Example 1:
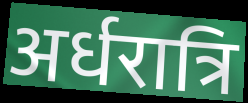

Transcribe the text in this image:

अर्धरात्रि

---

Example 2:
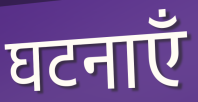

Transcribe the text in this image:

घटनाएँ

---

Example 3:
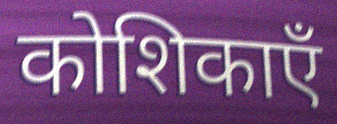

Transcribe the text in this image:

कोशिकाएँ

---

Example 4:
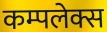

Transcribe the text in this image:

कम्पलेक्स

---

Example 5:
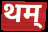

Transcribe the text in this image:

थम्